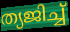
ത്യജിച്ച്